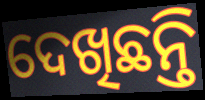
ଦେଖିଛନ୍ତି